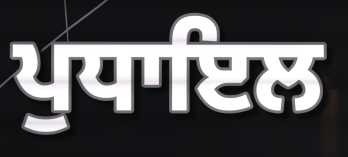
ਪੁਧਾਇਲ